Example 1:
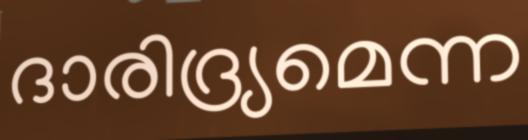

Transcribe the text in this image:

ദാരിദ്ര്യമെന്ന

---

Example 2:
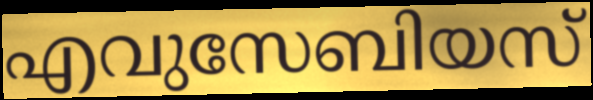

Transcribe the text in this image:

എവുസേബിയസ്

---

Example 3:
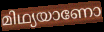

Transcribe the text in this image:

മിഥ്യയാണോ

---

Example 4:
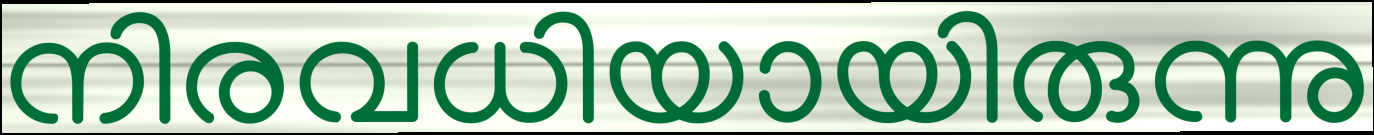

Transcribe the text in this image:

നിരവധിയായിരുന്നു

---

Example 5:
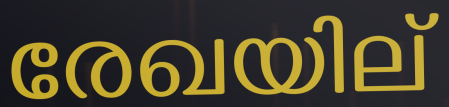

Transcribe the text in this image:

രേഖയില്